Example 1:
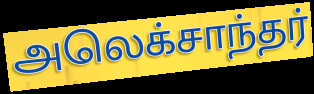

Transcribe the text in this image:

அலெக்சாந்தர்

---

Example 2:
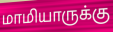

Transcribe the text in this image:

மாமியாருக்கு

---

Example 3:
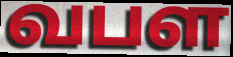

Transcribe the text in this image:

வபள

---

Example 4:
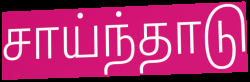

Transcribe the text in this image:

சாய்ந்தாடு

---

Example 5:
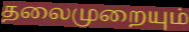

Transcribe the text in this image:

தலைமுறையும்